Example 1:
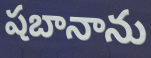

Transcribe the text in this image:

షబానాను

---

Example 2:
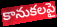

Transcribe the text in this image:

కానుకలపై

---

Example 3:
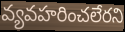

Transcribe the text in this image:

వ్యవహరించలేరని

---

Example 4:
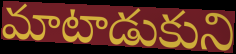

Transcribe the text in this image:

మాటాడుకుని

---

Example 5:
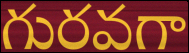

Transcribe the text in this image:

గురవగా